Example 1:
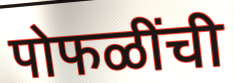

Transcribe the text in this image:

पोफळींची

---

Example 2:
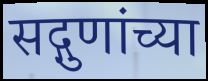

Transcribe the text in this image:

सद्गुणांच्या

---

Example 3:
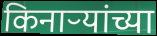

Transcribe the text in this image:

किनाऱ्यांच्या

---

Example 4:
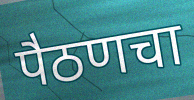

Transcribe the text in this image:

पैठणचा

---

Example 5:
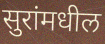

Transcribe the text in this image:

सुरांमधील